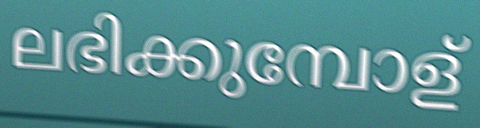
ലഭിക്കുമ്പോള്